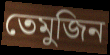
তেমুজিন